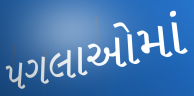
પગલાઓમાં